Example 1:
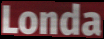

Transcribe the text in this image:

Londa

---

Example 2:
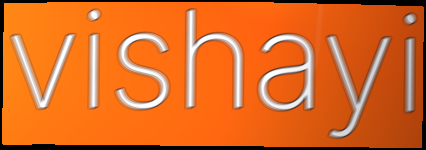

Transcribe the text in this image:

vishayi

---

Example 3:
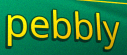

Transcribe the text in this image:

pebbly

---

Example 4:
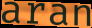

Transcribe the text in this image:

aran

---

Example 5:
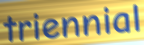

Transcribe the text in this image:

triennial